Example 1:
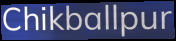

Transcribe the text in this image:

Chikballpur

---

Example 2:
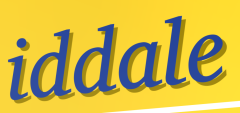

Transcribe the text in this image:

iddale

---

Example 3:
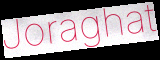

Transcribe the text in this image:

Joraghat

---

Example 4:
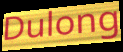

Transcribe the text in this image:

Dulong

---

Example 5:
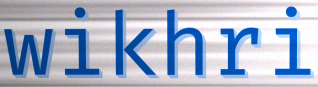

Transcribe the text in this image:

wikhri